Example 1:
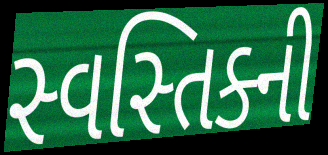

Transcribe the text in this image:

સ્વસ્તિક્ની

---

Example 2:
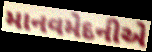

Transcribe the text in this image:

માનવમેદનીએ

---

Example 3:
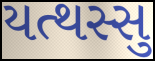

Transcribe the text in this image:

યત્થસ્સુ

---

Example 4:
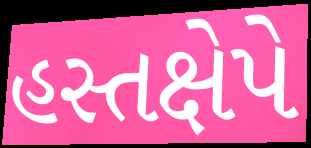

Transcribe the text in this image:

હસ્તક્ષેપે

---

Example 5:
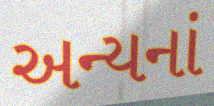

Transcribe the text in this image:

અન્યનાં